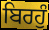
ਬਿਰਹੁੰ